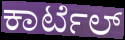
ಕಾರ್ಟೆಲ್